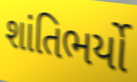
શાંતિભર્યો